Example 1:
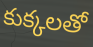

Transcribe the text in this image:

కుక్కలతో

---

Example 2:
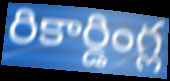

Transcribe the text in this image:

రికార్డింగ్ల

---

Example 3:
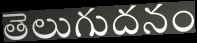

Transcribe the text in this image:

తెలుగుదనం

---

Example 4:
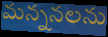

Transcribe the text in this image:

మన్ననలను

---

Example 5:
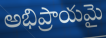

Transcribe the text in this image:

అభిప్రాయమై